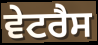
ਵੇਟਰੈਸ